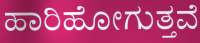
ಹಾರಿಹೋಗುತ್ತವೆ